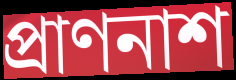
প্রাণনাশ